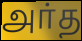
அர்த